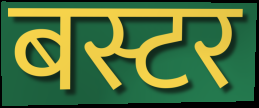
बस्टर